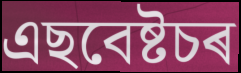
এছবেষ্টচৰ